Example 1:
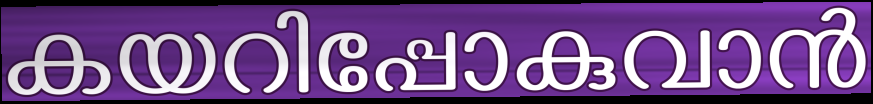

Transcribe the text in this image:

കയറിപ്പോകുവാൻ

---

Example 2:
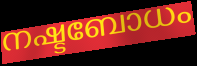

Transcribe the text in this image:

നഷ്ടബോധം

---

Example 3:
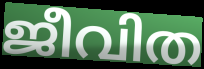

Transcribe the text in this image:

ജീവിത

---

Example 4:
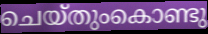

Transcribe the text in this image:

ചെയ്തുംകൊണ്ടു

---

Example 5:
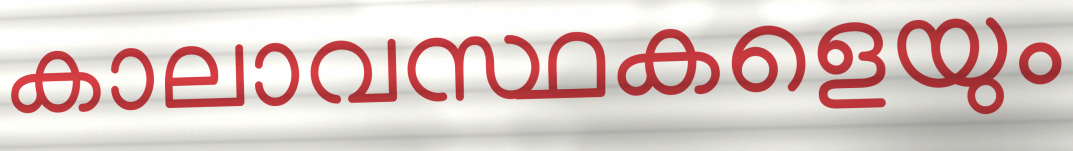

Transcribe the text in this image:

കാലാവസ്ഥകളെയും